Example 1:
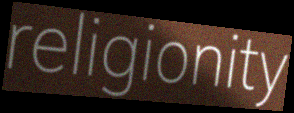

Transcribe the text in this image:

religionity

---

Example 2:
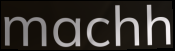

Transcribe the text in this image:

machh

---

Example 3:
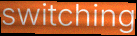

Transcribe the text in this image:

switching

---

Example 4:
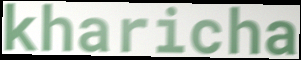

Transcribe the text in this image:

kharicha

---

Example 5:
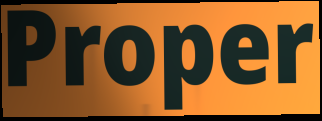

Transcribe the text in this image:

Proper